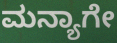
ಮನ್ಯಾಗೇ